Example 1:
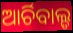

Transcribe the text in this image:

ଆର୍ଚିବାଲ୍ଡ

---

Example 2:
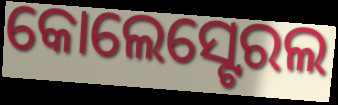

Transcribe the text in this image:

କୋଲେସ୍ଟେରଲ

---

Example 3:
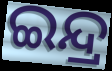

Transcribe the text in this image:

ଇନ୍ଦ୍ର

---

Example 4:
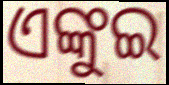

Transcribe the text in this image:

ଏଙ୍କୁଇ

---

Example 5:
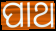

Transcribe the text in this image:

ପାଥ